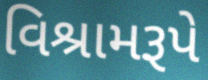
વિશ્રામરૂપે